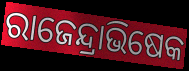
ରାଜେନ୍ଦ୍ରାଭିଷେକ